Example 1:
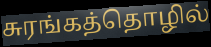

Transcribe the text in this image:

சுரங்கத்தொழில்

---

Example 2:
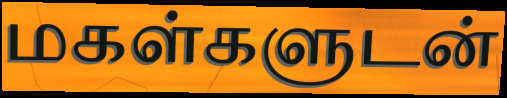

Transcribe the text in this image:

மகள்களுடன்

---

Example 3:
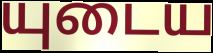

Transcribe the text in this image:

யுடைய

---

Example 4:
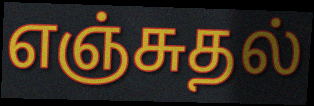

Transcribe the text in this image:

எஞ்சுதல்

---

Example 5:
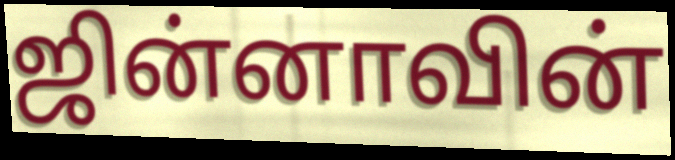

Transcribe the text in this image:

ஜின்னாவின்